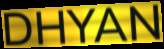
DHYAN